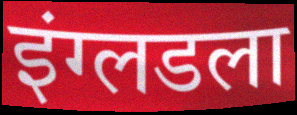
इंग्लडला